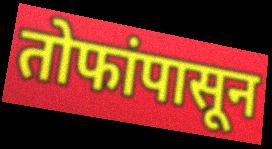
तोफांपासून